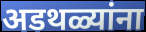
अडथळ्यांना